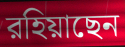
রহিয়াছেন